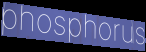
phosphorus